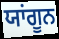
ਯਾਂਗੂਨ